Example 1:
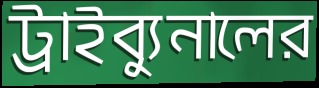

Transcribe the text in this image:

ট্রাইব্যুনালের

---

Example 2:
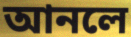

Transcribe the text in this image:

আনলে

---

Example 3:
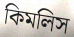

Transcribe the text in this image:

কিমলিস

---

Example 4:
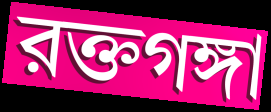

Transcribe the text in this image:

রক্তগঙ্গা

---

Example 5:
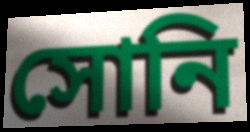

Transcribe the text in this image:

সোনি